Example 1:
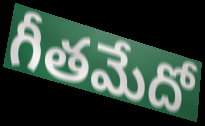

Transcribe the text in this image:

గీతమేదో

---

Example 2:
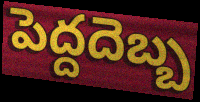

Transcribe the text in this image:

పెద్దదెబ్బ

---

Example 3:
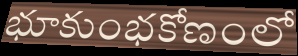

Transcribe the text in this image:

భూకుంభకోణంలో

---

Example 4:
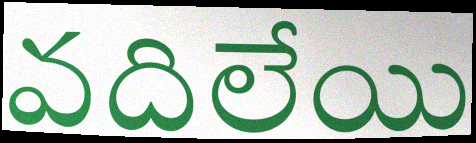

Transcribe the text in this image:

వదిలేయి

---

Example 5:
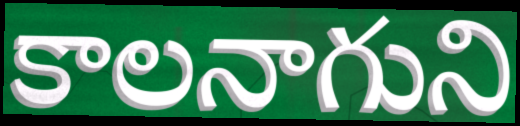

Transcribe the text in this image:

కాలనాగుని